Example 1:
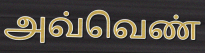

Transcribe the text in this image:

அவ்வெண்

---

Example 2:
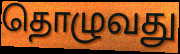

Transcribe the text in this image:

தொழுவது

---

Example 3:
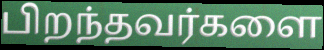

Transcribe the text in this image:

பிறந்தவர்களை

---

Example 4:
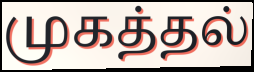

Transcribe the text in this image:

முகத்தல்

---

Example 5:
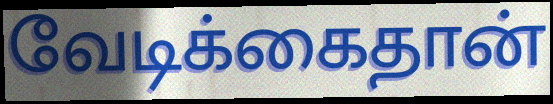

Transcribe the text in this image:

வேடிக்கைதான்